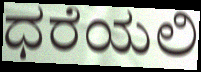
ಧರೆಯಲಿ